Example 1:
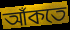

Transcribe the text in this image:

আঁকতে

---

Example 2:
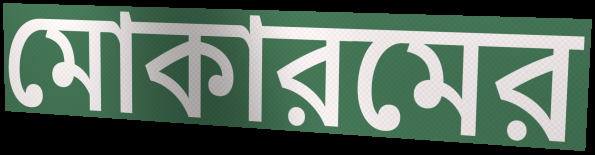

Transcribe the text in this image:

মোকারমের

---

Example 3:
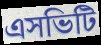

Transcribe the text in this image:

এসভিটি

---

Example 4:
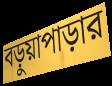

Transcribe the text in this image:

বড়ুয়াপাড়ার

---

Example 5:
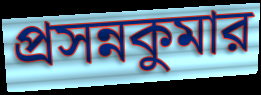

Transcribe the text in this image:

প্রসন্নকুমার